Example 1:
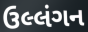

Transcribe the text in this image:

ઉલ્લંગન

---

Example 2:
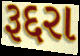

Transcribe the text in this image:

રૂદ્દરા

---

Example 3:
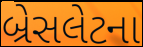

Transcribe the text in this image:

બ્રેસલેટના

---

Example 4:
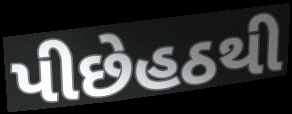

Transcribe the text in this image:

પીછેહઠથી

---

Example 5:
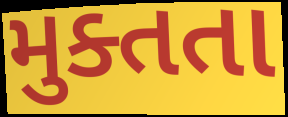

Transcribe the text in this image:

મુક્તતા